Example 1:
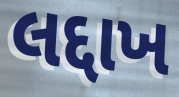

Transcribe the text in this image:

લદ્દાખ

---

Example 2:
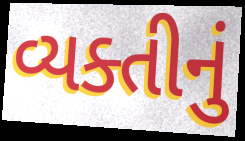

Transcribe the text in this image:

વ્યક્તીનું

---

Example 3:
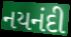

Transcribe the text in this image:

નયનંદી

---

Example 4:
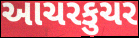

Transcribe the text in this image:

આચરકુચર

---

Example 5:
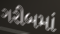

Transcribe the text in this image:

ગરીબમાં